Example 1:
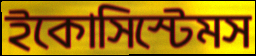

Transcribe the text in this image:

ইকোসিস্টেমস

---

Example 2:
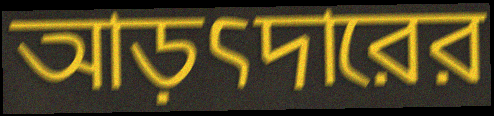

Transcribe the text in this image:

আড়ৎদারের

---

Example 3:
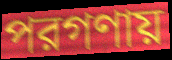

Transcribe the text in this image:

পরগণায়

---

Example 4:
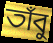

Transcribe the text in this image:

তাঁবু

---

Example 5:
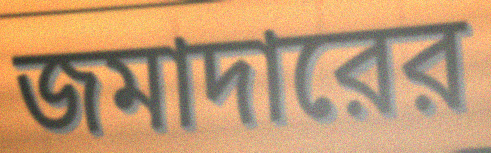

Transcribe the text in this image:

জমাদারের